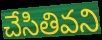
చేసితివని